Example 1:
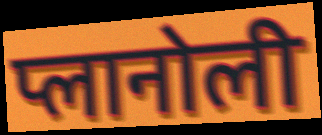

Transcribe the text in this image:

प्लानोली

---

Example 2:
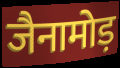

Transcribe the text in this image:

जैनामोड़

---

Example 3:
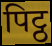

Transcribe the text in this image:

पिट्ठ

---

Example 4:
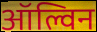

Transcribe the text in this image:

ऑल्विन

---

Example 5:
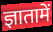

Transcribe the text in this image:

ज्ञातामें